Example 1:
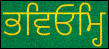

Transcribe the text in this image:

ਭਵਿਓਮ੍ਹਿ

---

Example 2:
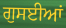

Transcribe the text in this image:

ਗੁਸਈਆਂ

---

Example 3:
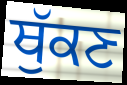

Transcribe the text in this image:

ਥੁੱਕਣ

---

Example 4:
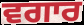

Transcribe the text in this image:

ਵਗਾਰ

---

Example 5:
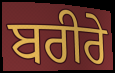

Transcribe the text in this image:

ਬਰੀਰੇ